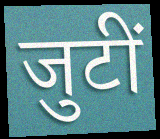
जुटीं